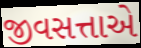
જીવસત્તાએ